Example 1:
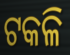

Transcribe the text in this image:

ଟକଳି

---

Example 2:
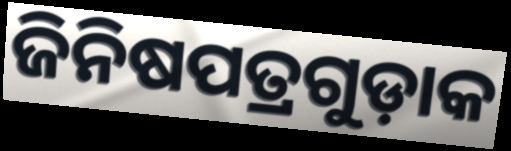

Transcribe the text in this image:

ଜିନିଷପତ୍ରଗୁଡ଼ାକ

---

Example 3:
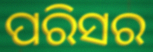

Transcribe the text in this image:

ପରିସର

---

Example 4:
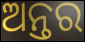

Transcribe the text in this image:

ଅନ୍ତର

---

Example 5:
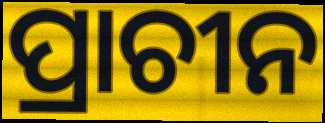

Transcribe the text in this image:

ପ୍ରାଚୀନ